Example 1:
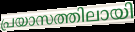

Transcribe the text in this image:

പ്രയാസത്തിലായി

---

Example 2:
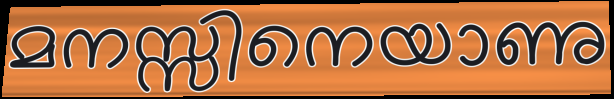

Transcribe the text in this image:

മനസ്സിനെയാണു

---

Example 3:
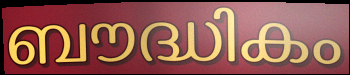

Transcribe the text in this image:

ബൗദ്ധികം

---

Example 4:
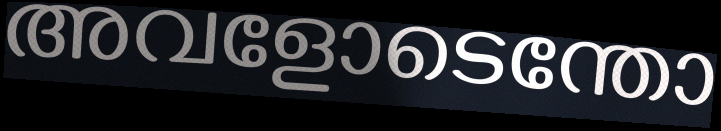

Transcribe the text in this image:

അവളോടെന്തോ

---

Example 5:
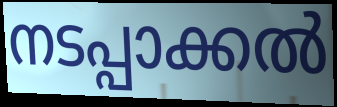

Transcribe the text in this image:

നടപ്പാക്കൽ